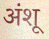
अंशू